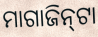
ମାଗାଜିନ୍‌ଟା